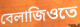
বেলাজিওতে